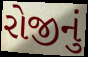
રોજીનું